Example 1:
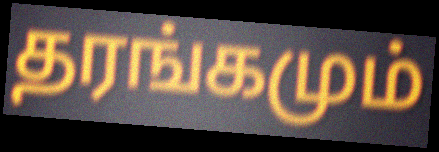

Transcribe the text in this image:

தரங்கமும்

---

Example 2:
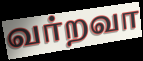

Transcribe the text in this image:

வர்றவா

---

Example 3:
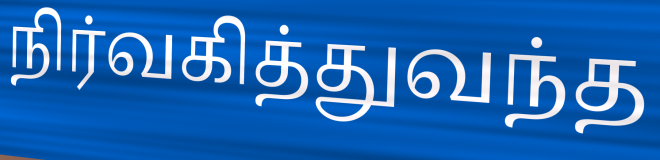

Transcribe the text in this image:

நிர்வகித்துவந்த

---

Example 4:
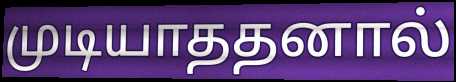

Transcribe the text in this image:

முடியாததனால்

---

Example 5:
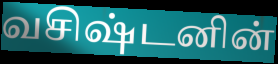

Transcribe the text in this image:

வசிஷ்டனின்